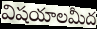
విషయాలమీద